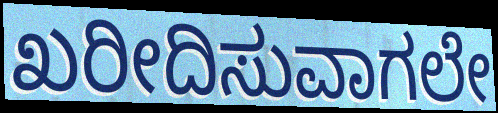
ಖರೀದಿಸುವಾಗಲೇ